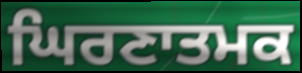
ਘਿਰਣਾਤਮਕ